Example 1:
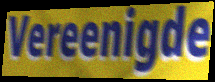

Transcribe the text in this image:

Vereenigde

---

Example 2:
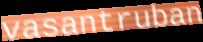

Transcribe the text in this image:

vasantruban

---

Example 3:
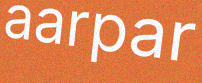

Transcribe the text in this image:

aarpar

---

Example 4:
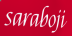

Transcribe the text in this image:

saraboji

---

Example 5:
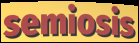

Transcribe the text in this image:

semiosis